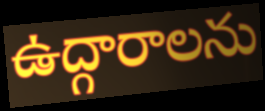
ఉద్గారాలను